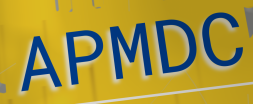
APMDC